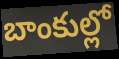
బాంకుల్లో